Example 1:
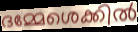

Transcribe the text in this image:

ദമ്മേശെക്കിൽ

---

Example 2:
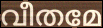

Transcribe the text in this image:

വീതമേ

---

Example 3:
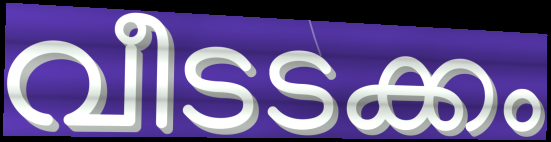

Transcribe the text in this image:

വീടടക്കം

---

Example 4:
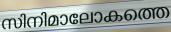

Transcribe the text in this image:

സിനിമാലോകത്തെ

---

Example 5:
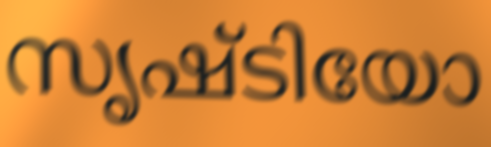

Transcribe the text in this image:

സൃഷ്ടിയോ